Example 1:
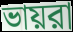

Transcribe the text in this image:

ভায়রা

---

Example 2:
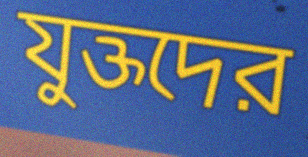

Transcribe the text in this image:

যুক্তদের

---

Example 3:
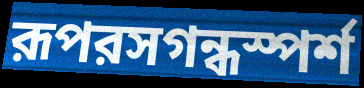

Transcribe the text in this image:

রূপরসগন্ধস্পর্শ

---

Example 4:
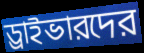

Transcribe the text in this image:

ড্রাইভারদের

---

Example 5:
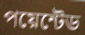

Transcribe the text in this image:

পয়েন্টেড